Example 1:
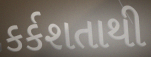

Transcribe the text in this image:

કર્કશતાથી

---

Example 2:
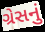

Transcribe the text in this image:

ગ્રેસનું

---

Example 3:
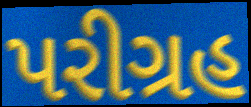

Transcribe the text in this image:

પરીગ્રહ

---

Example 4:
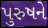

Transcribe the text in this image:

પુરુષને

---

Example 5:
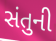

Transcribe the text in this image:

સંતુની